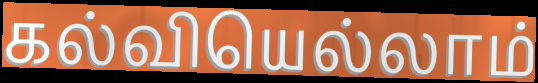
கல்வியெல்லாம்